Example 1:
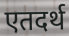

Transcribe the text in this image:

एतदर्थ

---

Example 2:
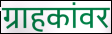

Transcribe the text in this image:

ग्राहकांवर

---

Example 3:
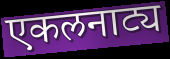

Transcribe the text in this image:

एकलनाट्य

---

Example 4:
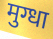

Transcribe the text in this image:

मुग्धा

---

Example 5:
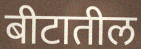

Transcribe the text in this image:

बीटातील